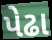
પેઢા